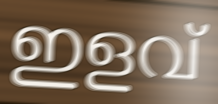
ഇളവ്